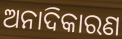
ଅନାଦିକାରଣ